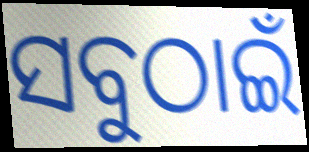
ସବୁଠାଇଁ